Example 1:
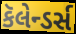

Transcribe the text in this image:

કૅલેન્ડર્સ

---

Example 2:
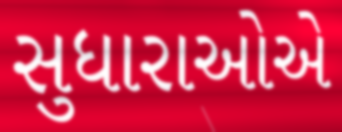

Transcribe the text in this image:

સુધારાઓએ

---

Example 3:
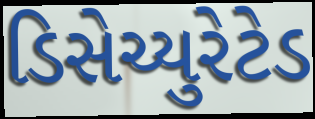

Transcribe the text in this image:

ડિસેચ્યુરેટેડ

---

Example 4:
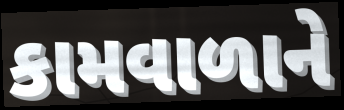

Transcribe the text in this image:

કામવાળાને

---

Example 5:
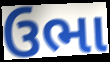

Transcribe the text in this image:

ઉભા